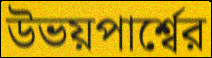
উভয়পার্শ্বের